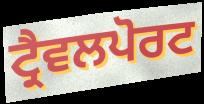
ਟ੍ਰੈਵਲਪੋਰਟ